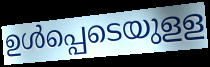
ഉൾപ്പെടെയുളള